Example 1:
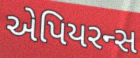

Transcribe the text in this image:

એપિયરન્સ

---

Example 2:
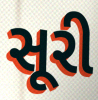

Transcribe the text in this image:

સૂરી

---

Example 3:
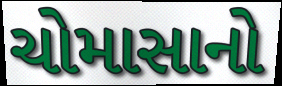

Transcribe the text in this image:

ચોમાસાનો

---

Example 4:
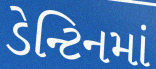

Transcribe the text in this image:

ડેન્ટિનમાં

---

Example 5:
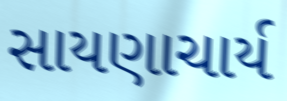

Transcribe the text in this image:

સાયણાચાર્ય